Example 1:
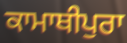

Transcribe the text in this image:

ਕਾਮਾਥੀਪੁਰਾ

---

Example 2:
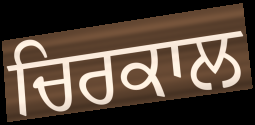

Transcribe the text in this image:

ਚਿਰਕਾਲ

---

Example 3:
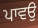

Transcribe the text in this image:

ਪਾਵਉ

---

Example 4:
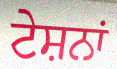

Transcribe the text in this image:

ਟੇਸ਼ਨਾਂ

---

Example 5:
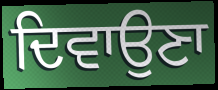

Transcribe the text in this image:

ਦਿਵਾਉਣਾ